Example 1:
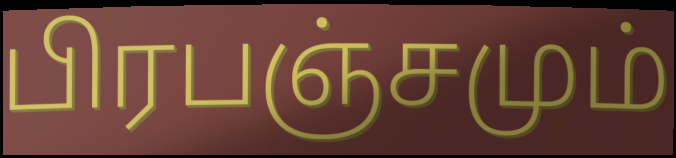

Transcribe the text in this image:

பிரபஞ்சமும்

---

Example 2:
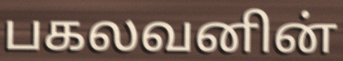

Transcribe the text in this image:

பகலவனின்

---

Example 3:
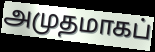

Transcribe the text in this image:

அமுதமாகப்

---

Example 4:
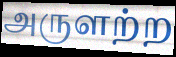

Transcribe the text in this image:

அருளற்ற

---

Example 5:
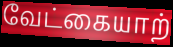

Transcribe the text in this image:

வேட்கையாற்